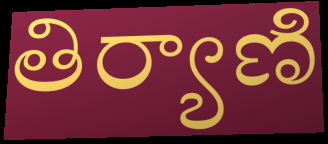
తిర్యాణి